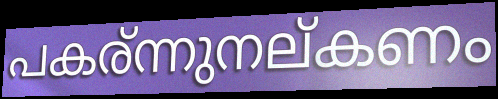
പകര്ന്നുനല്കണം